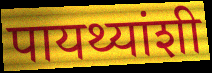
पायथ्यांशी